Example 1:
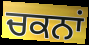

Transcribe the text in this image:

ਚਕਨਾਂ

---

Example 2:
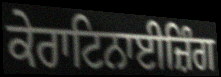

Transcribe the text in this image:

ਕੇਰਾਟਿਨਾਈਜ਼ਿੰਗ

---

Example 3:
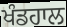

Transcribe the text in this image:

ਖੰਡਹਾਲ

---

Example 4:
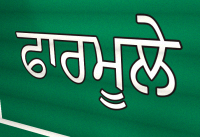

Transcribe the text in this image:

ਫਾਰਮੂਲੇ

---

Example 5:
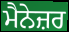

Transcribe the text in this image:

ਮੈਨੇਜ਼ਰ